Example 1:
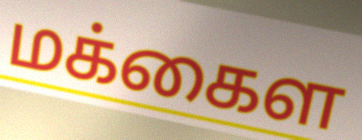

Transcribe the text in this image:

மக்கைள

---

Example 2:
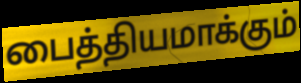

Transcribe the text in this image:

பைத்தியமாக்கும்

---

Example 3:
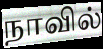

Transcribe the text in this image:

நாவில்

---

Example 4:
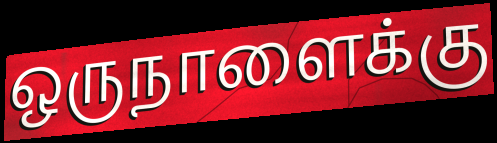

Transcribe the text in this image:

ஒருநாளைக்கு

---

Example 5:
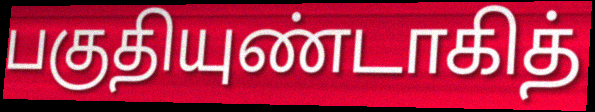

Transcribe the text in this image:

பகுதியுண்டாகித்